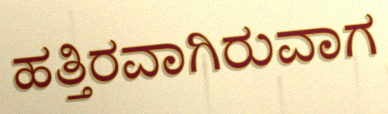
ಹತ್ತಿರವಾಗಿರುವಾಗ